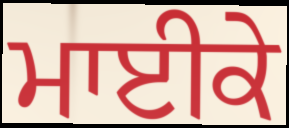
ਮਾਈਕੇ